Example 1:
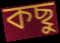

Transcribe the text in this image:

কছু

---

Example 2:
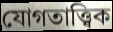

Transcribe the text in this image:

যোগতাত্ত্বিক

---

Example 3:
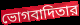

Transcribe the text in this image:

ভোগবাদিতার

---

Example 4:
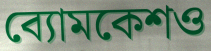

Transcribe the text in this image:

ব্যোমকেশও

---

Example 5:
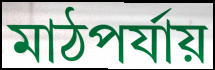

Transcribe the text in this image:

মাঠপর্যায়